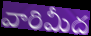
వారిమీద